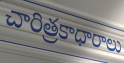
చారిత్రకాధారాలు